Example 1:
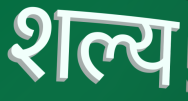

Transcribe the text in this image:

शल्‍य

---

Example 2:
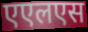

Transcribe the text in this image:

एएलएस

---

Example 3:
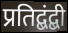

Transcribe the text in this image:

प्रतिद्बंद्बी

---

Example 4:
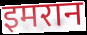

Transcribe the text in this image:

इमरान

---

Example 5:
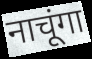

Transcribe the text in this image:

नाचूंगा